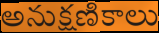
అనుక్షణికాలు